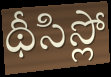
థీసిస్లో